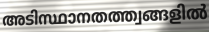
അടിസ്ഥാനതത്ത്വങ്ങളിൽ